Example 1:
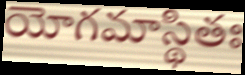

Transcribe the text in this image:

యోగమాస్థితః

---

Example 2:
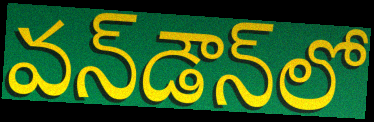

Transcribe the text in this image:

వన్‌డౌన్‌లో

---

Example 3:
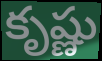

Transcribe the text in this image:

కృష్ణు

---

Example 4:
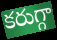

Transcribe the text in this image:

కరుగ్గా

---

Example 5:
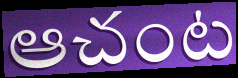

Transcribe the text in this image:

ఆచంట